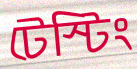
টেস্টিং